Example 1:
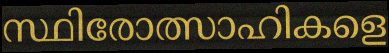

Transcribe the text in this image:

സ്ഥിരോത്സാഹികളെ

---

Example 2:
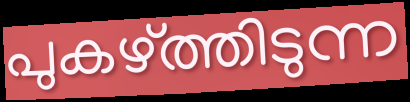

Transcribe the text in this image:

പുകഴ്ത്തിടുന്ന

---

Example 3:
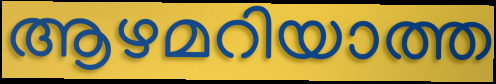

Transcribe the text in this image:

ആഴമറിയാത്ത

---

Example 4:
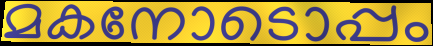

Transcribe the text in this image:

മകനോടൊപ്പം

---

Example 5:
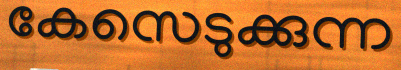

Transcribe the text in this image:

കേസെടുക്കുന്ന